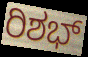
ರಿಶಭ್